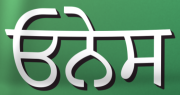
ਓਨੇਸ